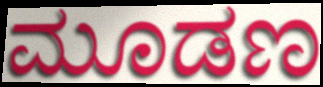
ಮೂಡಣ